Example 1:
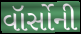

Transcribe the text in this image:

વૉર્સોની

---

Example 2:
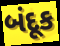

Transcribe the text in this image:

બંદૂક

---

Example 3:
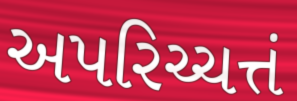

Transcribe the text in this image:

અપરિચ્ચત્તં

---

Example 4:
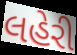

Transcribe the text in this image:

લહેરી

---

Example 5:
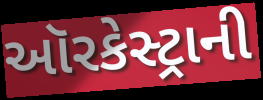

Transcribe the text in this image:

ઑરકેસ્ટ્રાની